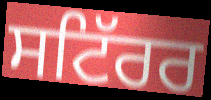
ਸਟਿੱਰਰ